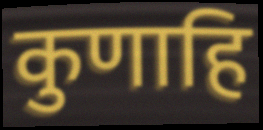
कुणाहि